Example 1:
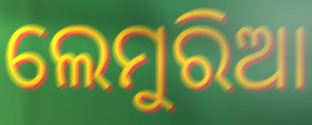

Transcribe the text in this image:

ଲେମୁରିଆ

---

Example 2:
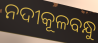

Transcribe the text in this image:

ନଦୀକୂଳବନ୍ଧୁ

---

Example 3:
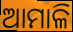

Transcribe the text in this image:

ଆମାଳି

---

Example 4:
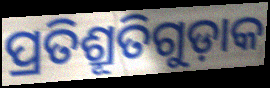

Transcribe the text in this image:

ପ୍ରତିଶ୍ରୂତିଗୁଡ଼ାକ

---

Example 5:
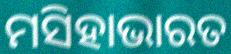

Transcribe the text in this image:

ମସିହାଭାରତ